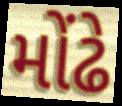
મોંઢે